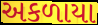
અકળાયા